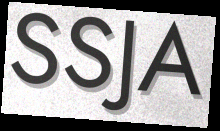
SSJA